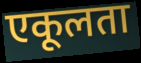
एकूलता